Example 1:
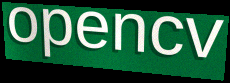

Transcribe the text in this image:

opencv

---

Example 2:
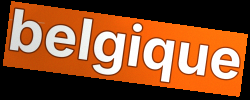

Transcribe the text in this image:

belgique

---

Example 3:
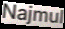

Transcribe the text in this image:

Najmul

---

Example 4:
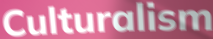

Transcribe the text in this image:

Culturalism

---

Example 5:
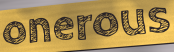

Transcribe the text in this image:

onerous